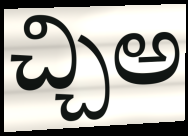
చ్చిఅ